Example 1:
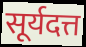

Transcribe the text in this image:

सूर्यदत्त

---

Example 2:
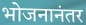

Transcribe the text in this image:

भोजनानंतर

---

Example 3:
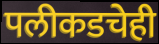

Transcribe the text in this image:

पलीकडचेही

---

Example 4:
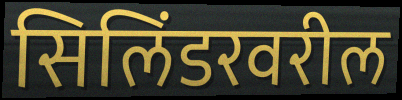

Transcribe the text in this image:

सिलिंडरवरील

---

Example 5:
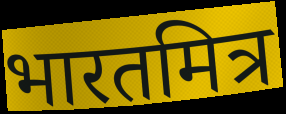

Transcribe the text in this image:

भारतमित्र